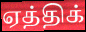
ஏத்திக்